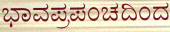
ಭಾವಪ್ರಪಂಚದಿಂದ